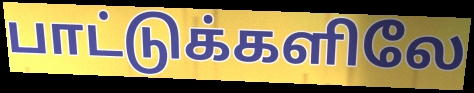
பாட்டுக்களிலே